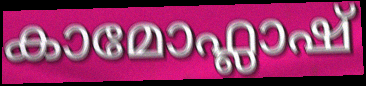
കാമോഫ്ലാഷ്